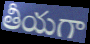
తీయగా